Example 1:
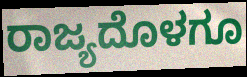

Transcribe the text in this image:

ರಾಜ್ಯದೊಳಗೂ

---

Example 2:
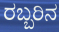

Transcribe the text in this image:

ರಬ್ಬರಿನ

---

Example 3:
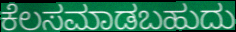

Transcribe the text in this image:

ಕೆಲಸಮಾಡಬಹುದು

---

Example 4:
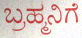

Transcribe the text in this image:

ಬ್ರಹ್ಮನಿಗೆ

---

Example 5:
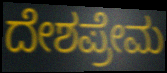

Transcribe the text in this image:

ದೇಶಪ್ರೇಮ